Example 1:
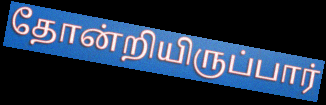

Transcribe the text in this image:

தோன்றியிருப்பார்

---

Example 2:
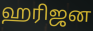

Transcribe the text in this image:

ஹரிஜன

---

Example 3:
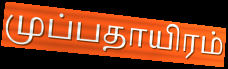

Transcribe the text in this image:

முப்பதாயிரம்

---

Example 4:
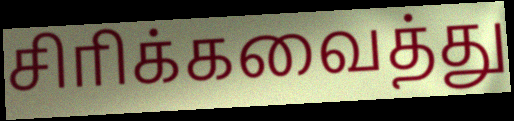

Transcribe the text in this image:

சிரிக்கவைத்து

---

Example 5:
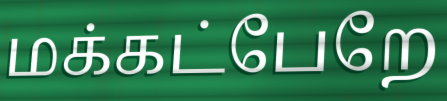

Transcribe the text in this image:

மக்கட்பேறே